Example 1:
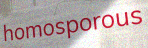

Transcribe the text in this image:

homosporous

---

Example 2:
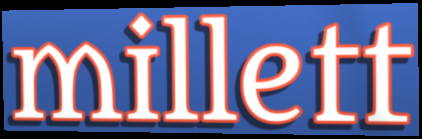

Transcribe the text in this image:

millett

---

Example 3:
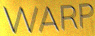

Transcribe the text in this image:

WARP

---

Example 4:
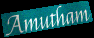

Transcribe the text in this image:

Amutham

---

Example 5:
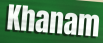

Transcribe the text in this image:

Khanam